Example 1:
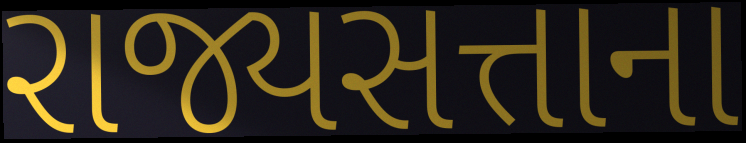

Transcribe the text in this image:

રાજ્યસત્તાના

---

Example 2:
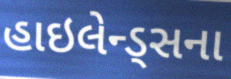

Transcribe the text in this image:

હાઇલેન્ડ્સના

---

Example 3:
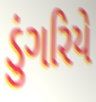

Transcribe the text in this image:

ડુંગરિયે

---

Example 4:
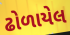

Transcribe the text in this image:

ઢોળાયેલ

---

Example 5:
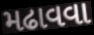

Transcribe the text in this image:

મઢાવવા